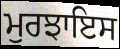
ਮੁਰਝਾਇਸ